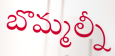
బొమ్మల్నీ